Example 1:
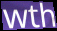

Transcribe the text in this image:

wth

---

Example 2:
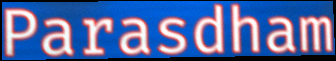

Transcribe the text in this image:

Parasdham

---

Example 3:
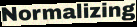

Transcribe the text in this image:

Normalizing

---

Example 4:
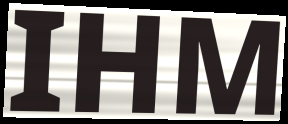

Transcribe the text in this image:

IHM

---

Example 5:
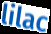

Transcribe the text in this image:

lilac